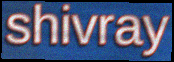
shivray